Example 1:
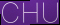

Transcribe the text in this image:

CHU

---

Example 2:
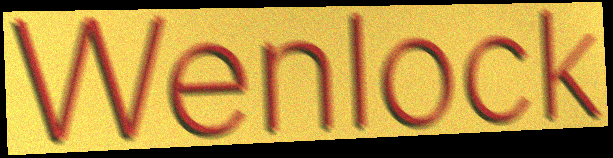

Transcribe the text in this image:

Wenlock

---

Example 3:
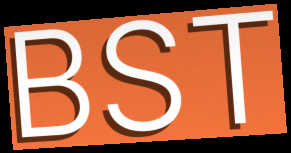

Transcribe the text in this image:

BST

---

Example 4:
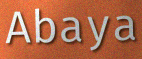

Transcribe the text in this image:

Abaya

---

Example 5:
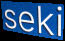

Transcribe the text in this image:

seki